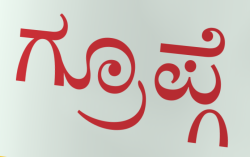
ಗ್ರೂಪ್ಗೆ